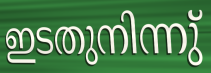
ഇടതുനിന്നു്